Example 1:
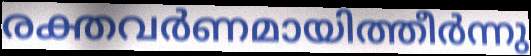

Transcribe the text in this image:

രക്തവർണമായിത്തീർന്നു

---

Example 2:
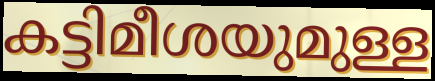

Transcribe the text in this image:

കട്ടിമീശയുമുള്ള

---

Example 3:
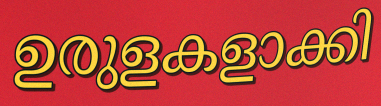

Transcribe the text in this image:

ഉരുളകളാക്കി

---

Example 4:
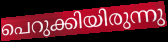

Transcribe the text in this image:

പെറുക്കിയിരുന്നു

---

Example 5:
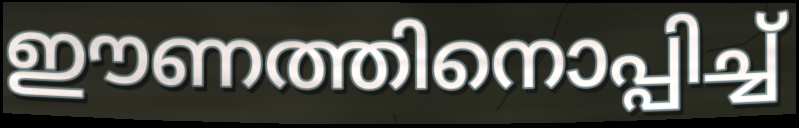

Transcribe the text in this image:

ഈണത്തിനൊപ്പിച്ച്